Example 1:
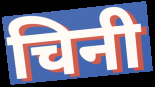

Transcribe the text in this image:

चिनी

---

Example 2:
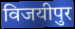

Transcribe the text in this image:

विजयीपुर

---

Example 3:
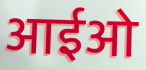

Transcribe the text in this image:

आईओ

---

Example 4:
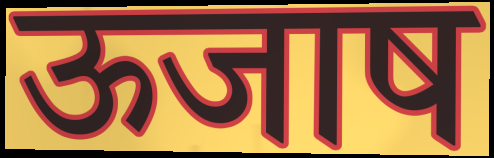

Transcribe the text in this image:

ऊजाष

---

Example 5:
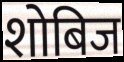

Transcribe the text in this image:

शोबिज